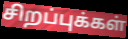
சிறப்புக்கள்